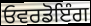
ਓਵਰਡੋਇੰਗ